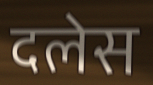
दलेस